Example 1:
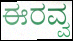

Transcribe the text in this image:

ಈರವ್ವ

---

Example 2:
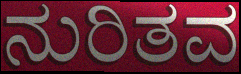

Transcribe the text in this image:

ನುರಿತವ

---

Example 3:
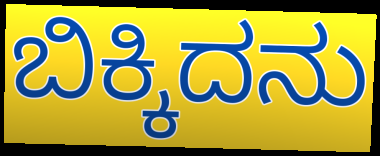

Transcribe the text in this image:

ಬಿಕ್ಕಿದನು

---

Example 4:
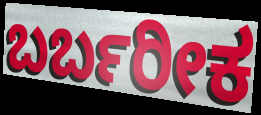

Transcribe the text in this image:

ಬರ್ಬರೀಕ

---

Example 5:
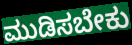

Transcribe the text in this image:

ಮುಡಿಸಬೇಕು